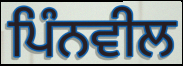
ਪਿੰਨਵੀਲ